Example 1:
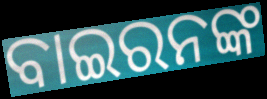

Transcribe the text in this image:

ବାଇରନଙ୍କ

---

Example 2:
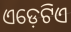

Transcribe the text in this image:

ଏଡ଼େଟିଏ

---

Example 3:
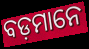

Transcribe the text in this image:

ବଡ଼ମାନେ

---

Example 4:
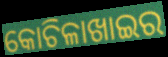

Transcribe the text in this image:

କୋଚିଳାଖାଇର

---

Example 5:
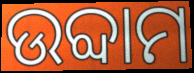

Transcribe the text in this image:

ଉବ୍ଦାମ